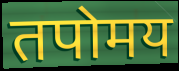
तपोमय